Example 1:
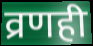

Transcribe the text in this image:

व्रणही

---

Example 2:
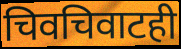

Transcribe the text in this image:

चिवचिवाटही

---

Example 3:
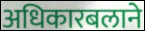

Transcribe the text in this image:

अधिकारबलाने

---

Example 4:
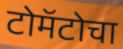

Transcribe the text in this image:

टोमॅटोचा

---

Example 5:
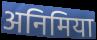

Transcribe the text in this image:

अनिमिया